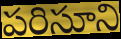
పరిసూని